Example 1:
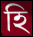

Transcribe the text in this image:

হি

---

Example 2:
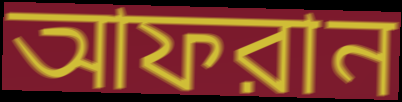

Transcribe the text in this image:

আফরান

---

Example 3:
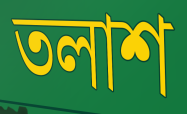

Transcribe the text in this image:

তলাশ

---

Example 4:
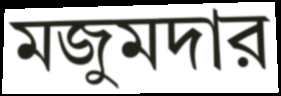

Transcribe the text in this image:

মজুমদার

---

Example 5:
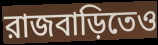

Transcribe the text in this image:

রাজবাড়িতেও